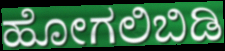
ಹೋಗಲಿಬಿಡಿ